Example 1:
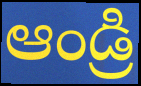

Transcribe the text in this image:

ఆండ్రి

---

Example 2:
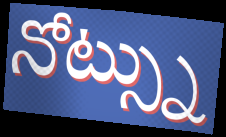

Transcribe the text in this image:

నోట్స్ను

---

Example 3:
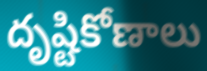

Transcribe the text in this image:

దృష్టికోణాలు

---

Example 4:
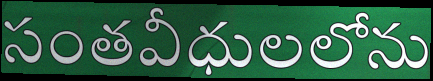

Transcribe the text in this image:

సంతవీధులలోను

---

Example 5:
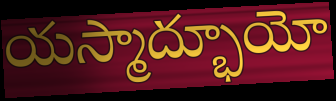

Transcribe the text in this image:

యస్మాద్భూయో